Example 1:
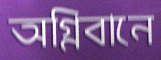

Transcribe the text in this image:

অগ্নিবানে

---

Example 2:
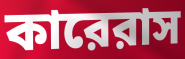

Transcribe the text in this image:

কারেরাস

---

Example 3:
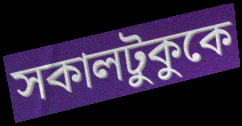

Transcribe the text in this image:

সকালটুকুকে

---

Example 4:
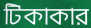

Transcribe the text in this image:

টিকাকার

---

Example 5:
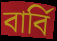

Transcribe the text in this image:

বার্বি